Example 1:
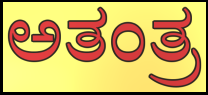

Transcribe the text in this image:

ಅತಂತ್ರ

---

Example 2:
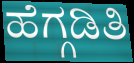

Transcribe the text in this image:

ಹೆಗ್ಗಡಿತಿ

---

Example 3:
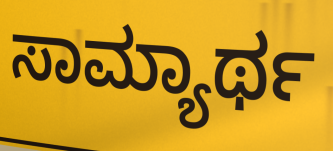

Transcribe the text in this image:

ಸಾಮ್ಯಾರ್ಥ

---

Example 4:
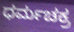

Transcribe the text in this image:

ಧರ್ಮಚಕ್ರ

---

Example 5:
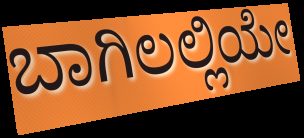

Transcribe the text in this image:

ಬಾಗಿಲಲ್ಲಿಯೇ